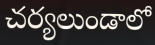
చర్యలుండాలో